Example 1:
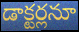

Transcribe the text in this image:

డాక్టర్లనూ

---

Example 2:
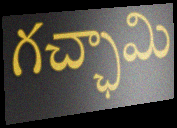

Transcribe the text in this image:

గచ్ఛామి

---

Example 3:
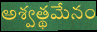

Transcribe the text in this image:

అశ్వత్థమేనం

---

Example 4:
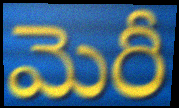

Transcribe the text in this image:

మెరీ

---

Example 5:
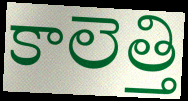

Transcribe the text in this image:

కాలెత్తి